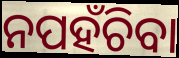
ନପହଁଚିବା